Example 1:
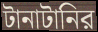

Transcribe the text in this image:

টানাটানির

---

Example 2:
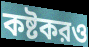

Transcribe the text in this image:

কষ্টকরও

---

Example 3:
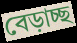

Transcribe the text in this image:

বেড়াচ্ছ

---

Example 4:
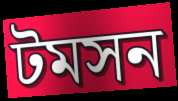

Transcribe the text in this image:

টমসন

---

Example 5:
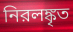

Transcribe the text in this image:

নিরলঙ্কৃত